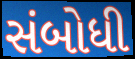
સંબોધી